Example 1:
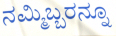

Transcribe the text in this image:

ನಮ್ಮಿಬ್ಬರನ್ನೂ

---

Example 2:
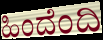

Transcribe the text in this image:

ಹಿಂದೆಂದಿ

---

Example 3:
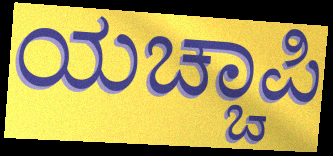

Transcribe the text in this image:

ಯಚ್ಚಾಪಿ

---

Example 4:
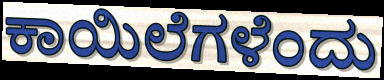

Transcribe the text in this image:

ಕಾಯಿಲೆಗಳೆಂದು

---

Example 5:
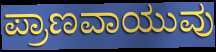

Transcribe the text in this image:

ಪ್ರಾಣವಾಯುವು